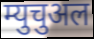
म्युचुअल